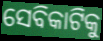
ସେବିକାଟିକୁ